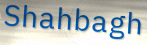
Shahbagh